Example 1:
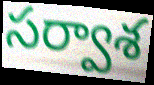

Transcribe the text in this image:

సర్వాశ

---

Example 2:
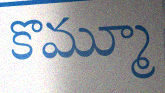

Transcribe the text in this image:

కొమ్మూ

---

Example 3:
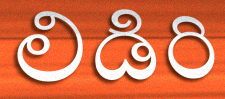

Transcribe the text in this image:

లిడిరి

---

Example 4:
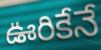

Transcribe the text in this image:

ఊరికేనే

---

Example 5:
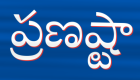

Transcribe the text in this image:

ప్రణష్టా